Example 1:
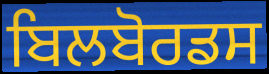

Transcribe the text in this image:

ਬਿਲਬੋਰਡਸ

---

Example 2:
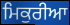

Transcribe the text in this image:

ਮਿਕੁਰੀਆ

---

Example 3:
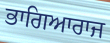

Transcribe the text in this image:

ਭਾਗਿਆਰਾਜ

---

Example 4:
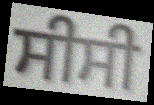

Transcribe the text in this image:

ਸੀਸੀ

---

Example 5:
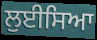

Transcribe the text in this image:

ਲੁਈਸਿਆ